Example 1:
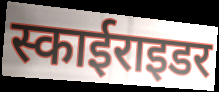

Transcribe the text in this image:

स्काईराइडर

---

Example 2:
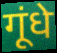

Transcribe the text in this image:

गूंधे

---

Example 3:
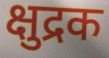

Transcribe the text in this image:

क्षुद्रक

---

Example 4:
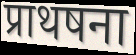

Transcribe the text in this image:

प्राथषना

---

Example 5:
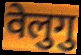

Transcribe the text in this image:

वेलुगु